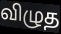
விழுத